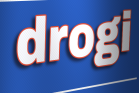
drogi